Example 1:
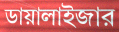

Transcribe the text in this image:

ডায়ালাইজার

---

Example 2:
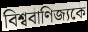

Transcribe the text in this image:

বিশ্ববাণিজ্যকে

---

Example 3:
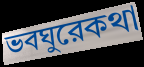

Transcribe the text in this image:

ভবঘুরেকথা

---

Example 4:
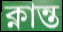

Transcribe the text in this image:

ক্নান্ত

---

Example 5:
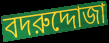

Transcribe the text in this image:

বদরুদ্দোজা